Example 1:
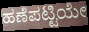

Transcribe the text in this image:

ಹಣೆಪಟ್ಟಿಯೇ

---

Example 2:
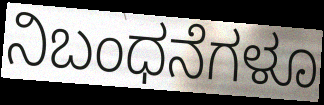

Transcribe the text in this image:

ನಿಬಂಧನೆಗಳೂ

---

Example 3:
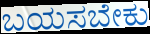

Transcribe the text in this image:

ಬಯಸಬೇಕು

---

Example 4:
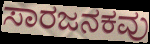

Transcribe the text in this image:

ಸಾರಜನಕವು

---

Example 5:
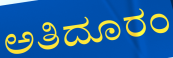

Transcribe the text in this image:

ಅತಿದೂರಂ